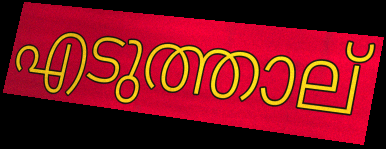
എടുത്താല്